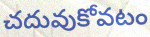
చదువుకోవటం